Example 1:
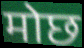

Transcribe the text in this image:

मोछ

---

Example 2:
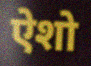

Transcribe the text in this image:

ऐशो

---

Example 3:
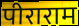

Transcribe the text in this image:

पीराराम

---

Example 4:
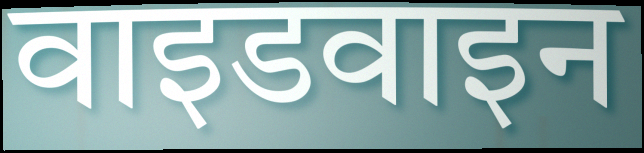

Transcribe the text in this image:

वाइडवाइन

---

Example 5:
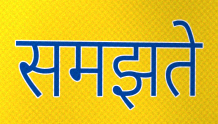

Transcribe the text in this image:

समझते